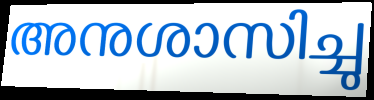
അനുശാസിച്ചു